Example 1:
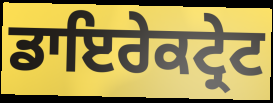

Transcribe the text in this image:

ਡਾਇਰੇਕਟ੍ਰੇਟ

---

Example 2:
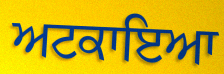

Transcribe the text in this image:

ਅਟਕਾਇਆ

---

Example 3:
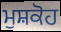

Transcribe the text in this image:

ਮੁਸ਼ਕੋਹ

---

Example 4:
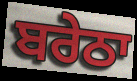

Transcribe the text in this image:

ਬਰੇਠਾ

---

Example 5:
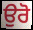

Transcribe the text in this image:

ਉਰੋ